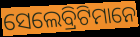
ସେଲେବ୍ରିଟିମାନେ